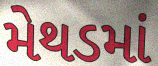
મેથડમાં